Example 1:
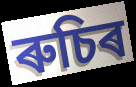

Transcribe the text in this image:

ৰুচিৰ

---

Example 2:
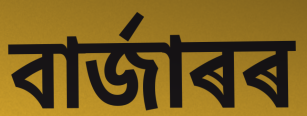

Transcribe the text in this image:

বাৰ্জাৰৰ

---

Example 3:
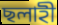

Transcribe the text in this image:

ছলাহী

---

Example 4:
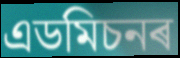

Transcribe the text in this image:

এডমিচনৰ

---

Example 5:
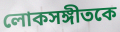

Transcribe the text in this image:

লোকসঙ্গীতকে